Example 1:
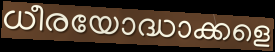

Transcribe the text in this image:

ധീരയോദ്ധാക്കളെ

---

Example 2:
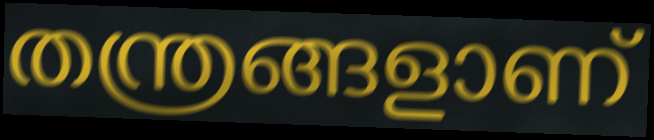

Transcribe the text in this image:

തന്ത്രങ്ങളാണ്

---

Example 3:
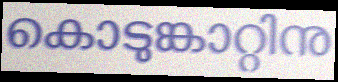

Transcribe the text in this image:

കൊടുങ്കാറ്റിനു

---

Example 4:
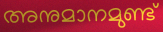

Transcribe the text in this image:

അനുമാനമുണ്ട്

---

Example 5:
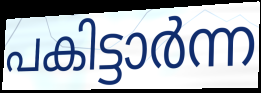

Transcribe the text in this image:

പകിട്ടാർന്ന